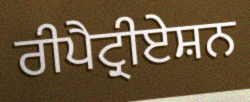
ਰੀਪੈਟ੍ਰੀਏਸ਼ਨ